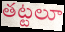
తట్టలూ